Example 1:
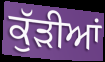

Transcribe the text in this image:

ਕੁੱੜੀਆਂ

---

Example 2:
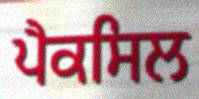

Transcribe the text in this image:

ਪੈਕਸਿਲ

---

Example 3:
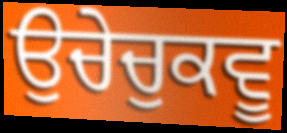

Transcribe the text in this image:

ਉਚੇਚੁਕਵੂ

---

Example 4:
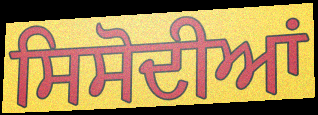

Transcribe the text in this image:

ਸਿਸੋਦੀਆਂ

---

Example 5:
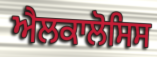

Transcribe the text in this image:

ਐਲਕਾਲੋਸਿਸ